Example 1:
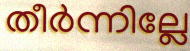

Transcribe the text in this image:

തീർന്നില്ലേ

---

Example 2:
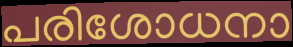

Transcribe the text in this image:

പരിശോധനാ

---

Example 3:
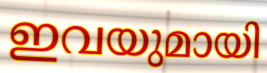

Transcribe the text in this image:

ഇവയുമായി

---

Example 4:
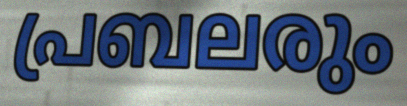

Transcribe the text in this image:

പ്രബലരും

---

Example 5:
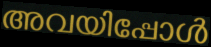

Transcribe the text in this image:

അവയിപ്പോൾ